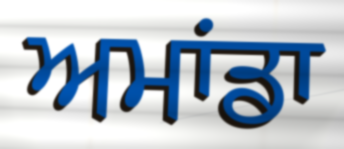
ਅਮਾਂਡਾ